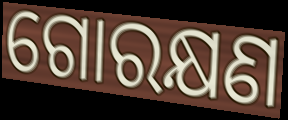
ଗୋରକ୍ଷଣ